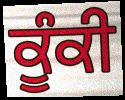
ਕੂੰਕੀ